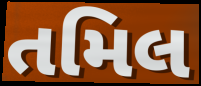
તમિલ